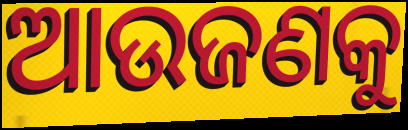
ଆଉଜଣକୁ